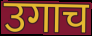
उगाच